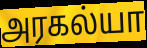
அரகல்யா